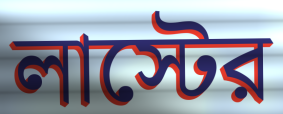
লাস্টের